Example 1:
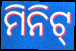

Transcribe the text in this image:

ମିନିଟ୍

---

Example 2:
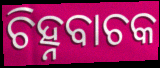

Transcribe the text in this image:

ଚିହ୍ନବାଚକ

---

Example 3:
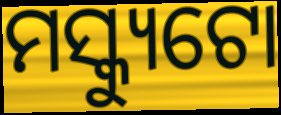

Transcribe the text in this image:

ମସ୍କ୍ୟୁଟୋ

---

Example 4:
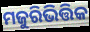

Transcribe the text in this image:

ମଜୁରିଭିତ୍ତିକ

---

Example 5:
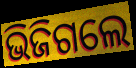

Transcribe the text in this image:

ଭିଜିଗଲେ